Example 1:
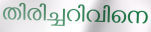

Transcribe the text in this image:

തിരിച്ചറിവിനെ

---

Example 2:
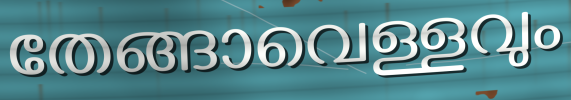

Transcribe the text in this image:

തേങ്ങാവെള്ളവും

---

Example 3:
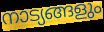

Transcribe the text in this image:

നാട്യങ്ങളും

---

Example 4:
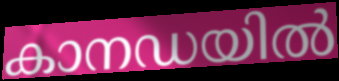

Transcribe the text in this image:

കാനഡയിൽ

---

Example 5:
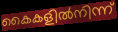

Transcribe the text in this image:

കൈകളിൽനിന്ന്